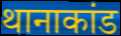
थानाकांड